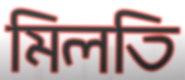
মিলতি